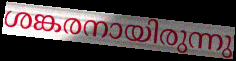
ശങ്കരനായിരുന്നു